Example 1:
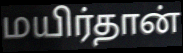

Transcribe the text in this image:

மயிர்தான்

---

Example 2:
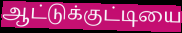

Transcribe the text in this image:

ஆட்டுக்குட்டியை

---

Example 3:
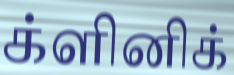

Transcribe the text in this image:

க்ளினிக்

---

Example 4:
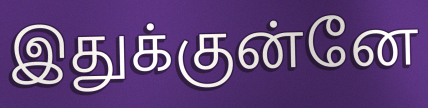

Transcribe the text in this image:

இதுக்குன்னே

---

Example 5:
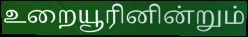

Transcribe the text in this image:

உறையூரினின்றும்